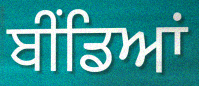
ਬੀਂਡਿਆਂ